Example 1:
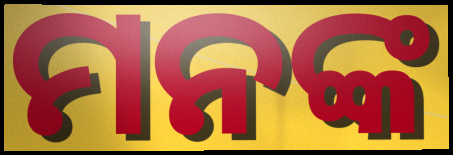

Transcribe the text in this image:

ମନଙ୍କ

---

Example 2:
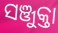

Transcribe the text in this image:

ସଞ୍ଜୁକ୍ତା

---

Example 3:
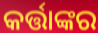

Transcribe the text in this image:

କର୍ତ୍ତାଙ୍କର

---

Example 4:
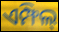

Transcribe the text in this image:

ଏମ୍ଫିଲ୍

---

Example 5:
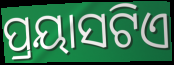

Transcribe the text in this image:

ପ୍ରୟାସଟିଏ